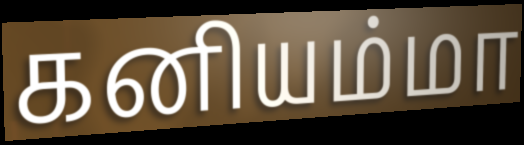
கனியம்மா